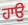
ਹਾਉ